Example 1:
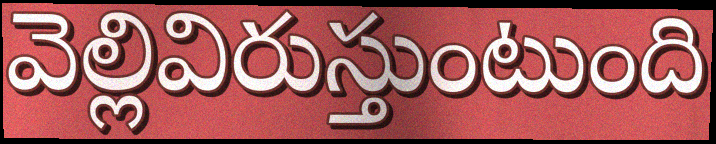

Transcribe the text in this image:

వెల్లివిరుస్తుంటుంది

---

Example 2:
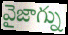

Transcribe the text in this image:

వైజాగ్ను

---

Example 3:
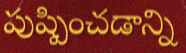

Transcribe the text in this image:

పుష్పించడాన్ని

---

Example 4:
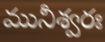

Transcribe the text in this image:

మునీశ్వరః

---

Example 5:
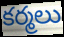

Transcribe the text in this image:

కర్మలు